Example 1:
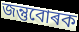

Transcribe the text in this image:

জন্তুবোৰক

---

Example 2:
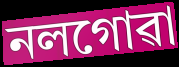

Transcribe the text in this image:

নলগোৱা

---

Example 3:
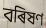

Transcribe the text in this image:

বৰিষণ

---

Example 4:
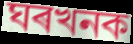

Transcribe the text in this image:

ঘৰখনক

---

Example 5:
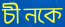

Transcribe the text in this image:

চীনকে